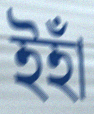
ইহাঁ